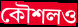
কৌশলও